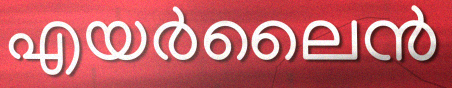
എയർലൈൻ